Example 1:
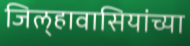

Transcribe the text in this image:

जिल्हावासियांच्या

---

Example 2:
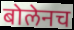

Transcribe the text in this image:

बोलेनच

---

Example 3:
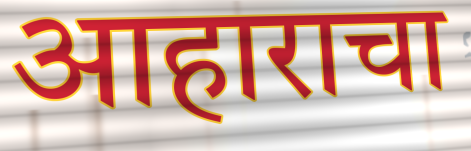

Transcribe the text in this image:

आहाराचा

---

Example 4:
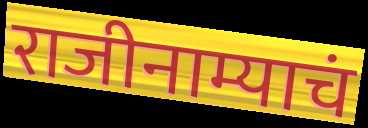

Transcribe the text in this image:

राजीनाम्याचं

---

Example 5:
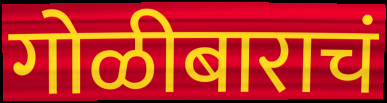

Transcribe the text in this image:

गोळीबाराचं